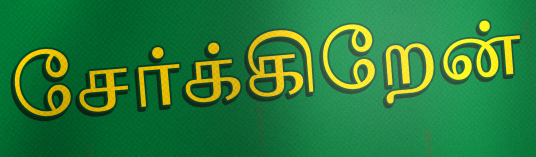
சேர்க்கிறேன்